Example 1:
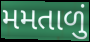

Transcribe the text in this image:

મમતાળું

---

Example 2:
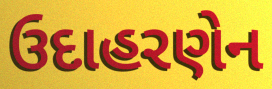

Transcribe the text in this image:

ઉદાહરણેન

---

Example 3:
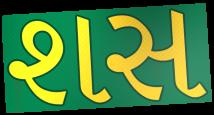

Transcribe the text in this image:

શસ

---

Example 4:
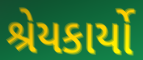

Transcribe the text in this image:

શ્રેયકાર્યો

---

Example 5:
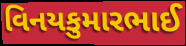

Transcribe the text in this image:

વિનયકુમારભાઈ